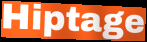
Hiptage